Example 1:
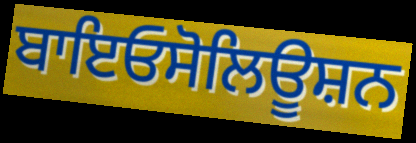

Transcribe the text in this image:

ਬਾਇਓਸੋਲਿਊਸ਼ਨ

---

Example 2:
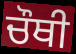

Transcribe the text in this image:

ਚੌਥੀ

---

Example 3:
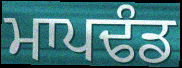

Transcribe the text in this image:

ਮਾਪਢੰਡ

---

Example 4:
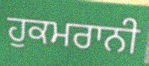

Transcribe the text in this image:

ਹੁਕਮਰਾਨੀ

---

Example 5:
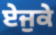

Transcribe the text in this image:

ਏਜੁਕੇ